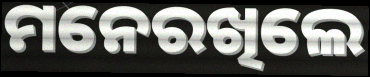
ମନେରଖିଲେ